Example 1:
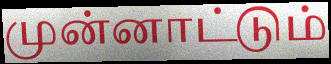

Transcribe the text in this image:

முன்னாட்டும்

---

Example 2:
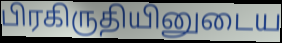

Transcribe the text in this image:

பிரகிருதியினுடைய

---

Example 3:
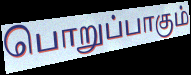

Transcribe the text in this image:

பொறுப்பாகும்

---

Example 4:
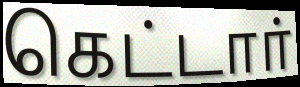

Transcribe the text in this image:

கெட்டார்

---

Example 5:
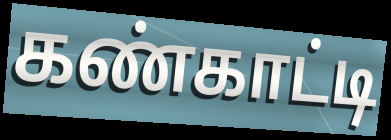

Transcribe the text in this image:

கண்காட்டி